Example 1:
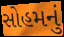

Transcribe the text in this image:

સોહમનું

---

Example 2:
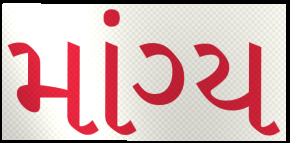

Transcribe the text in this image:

માંગ્ય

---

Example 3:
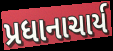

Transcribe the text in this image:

પ્રધાનાચાર્ય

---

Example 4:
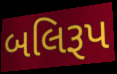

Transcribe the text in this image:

બલિરૂપ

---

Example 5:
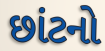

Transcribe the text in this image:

છાંટનો